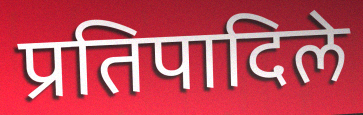
प्रतिपादिले